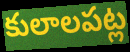
కులాలపట్ల